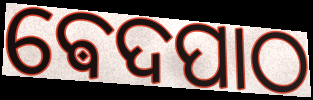
ଵେଦପାଠ